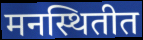
मनस्थितीत